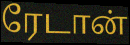
ரேடான்